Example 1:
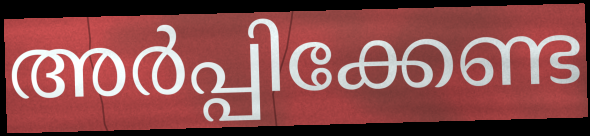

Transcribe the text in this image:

അർപ്പിക്കേണ്ട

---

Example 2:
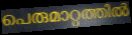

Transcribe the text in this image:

പെരുമാറ്റത്തിൽ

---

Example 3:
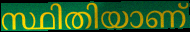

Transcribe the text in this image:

സ്ഥിതിയാണ്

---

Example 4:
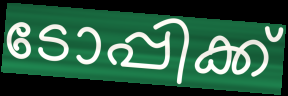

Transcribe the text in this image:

ടോപ്പിക്ക്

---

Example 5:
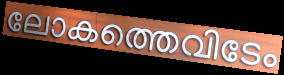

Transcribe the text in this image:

ലോകത്തെവിടേം